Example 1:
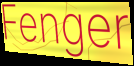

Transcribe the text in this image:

Fenger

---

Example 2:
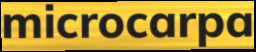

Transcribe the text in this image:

microcarpa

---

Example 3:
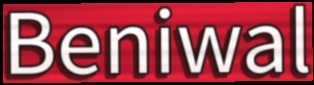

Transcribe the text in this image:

Beniwal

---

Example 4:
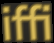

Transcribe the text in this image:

iffi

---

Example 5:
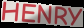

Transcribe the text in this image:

HENRY